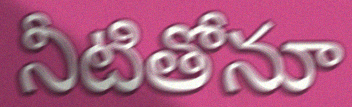
నీటితోనూ